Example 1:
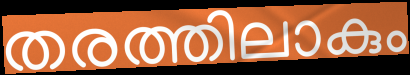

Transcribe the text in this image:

തരത്തിലാകും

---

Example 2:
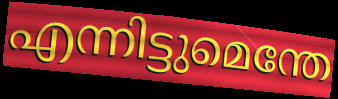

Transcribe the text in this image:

എന്നിട്ടുമെന്തേ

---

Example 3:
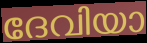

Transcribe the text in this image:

ദേവിയാ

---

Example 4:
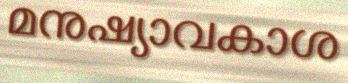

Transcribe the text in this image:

മനുഷ്യാവകാശ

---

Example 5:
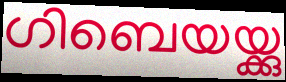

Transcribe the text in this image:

ഗിബെയയ്ക്കു